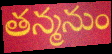
తన్మనుం